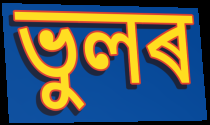
ভুলৰ